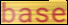
base